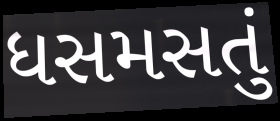
ધસમસતું